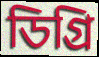
ডিগ্রি